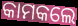
କାମକଲେ